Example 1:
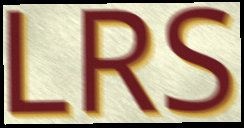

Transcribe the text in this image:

LRS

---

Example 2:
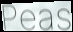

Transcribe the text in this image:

Peas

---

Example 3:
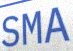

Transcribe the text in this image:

SMA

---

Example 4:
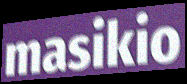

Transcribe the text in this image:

masikio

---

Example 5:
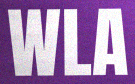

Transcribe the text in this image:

WLA